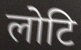
लोटि